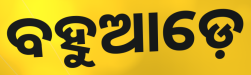
ବହୁଆଡ଼େ